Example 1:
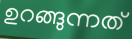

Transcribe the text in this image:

ഉറങ്ങുന്നത്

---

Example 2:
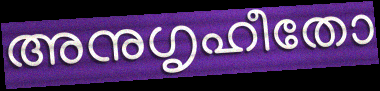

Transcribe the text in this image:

അനുഗൃഹീതോ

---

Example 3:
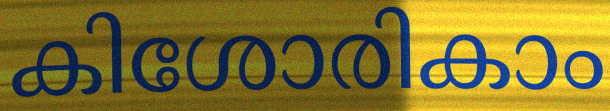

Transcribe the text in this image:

കിശോരികാം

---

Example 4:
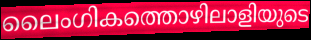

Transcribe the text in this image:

ലൈംഗികത്തൊഴിലാളിയുടെ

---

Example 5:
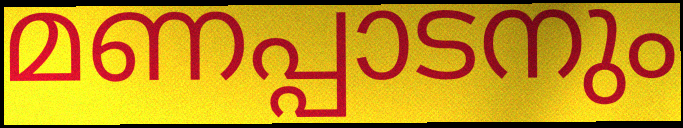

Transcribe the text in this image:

മണപ്പാടനും